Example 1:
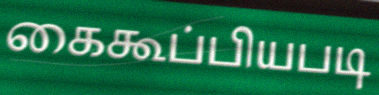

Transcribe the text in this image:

கைகூப்பியபடி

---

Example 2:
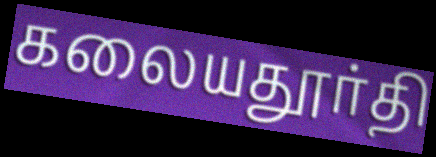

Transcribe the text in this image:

கலையதூர்தி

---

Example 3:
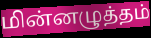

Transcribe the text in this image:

மின்னழுத்தம்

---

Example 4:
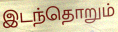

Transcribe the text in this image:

இடந்தொறும்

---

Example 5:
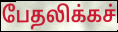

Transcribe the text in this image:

பேதலிக்கச்